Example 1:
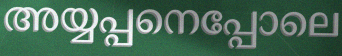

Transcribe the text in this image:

അയ്യപ്പനെപ്പോലെ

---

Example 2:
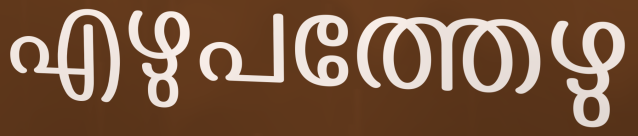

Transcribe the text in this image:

എഴുപത്തേഴു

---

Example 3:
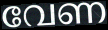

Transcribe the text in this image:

വേണ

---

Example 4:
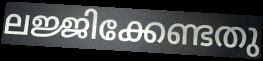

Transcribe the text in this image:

ലജ്ജിക്കേണ്ടതു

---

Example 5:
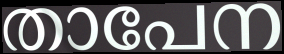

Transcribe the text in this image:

താപേന